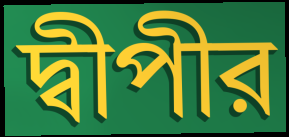
দ্বীপীর